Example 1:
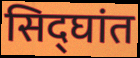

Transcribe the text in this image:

सिद्घांत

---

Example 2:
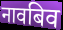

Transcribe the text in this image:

नावबिव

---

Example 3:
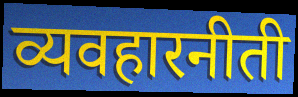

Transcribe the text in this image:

व्यवहारनीती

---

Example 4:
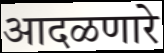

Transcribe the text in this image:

आदळणारे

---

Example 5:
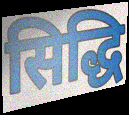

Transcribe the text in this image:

सिद्धि